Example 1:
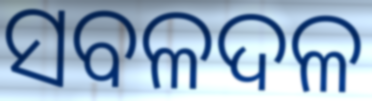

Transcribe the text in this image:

ସବଳଦଳ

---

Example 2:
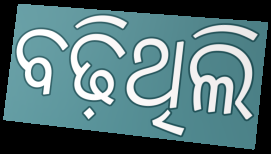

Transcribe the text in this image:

ବଢ଼ିଥିଲି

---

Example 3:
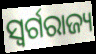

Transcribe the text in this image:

ସ୍ୱର୍ଗରାଜ୍ୟ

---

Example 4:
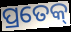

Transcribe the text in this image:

ପ୍ରତେକ୍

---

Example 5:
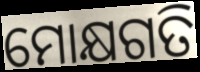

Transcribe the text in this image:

ମୋକ୍ଷଗତି